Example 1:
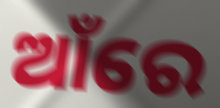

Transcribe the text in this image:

ଆଁରେ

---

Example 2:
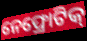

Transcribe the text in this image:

ନେଫ୍ରୋଟିକ୍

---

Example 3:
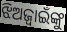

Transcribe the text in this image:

ଝିଅଜ୍ୱାଇଁଙ୍କୁ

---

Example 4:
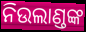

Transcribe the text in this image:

ନିଉଲାଣ୍ଡଙ୍କ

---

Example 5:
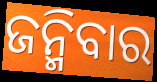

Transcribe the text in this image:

ଜନ୍ମିବାର